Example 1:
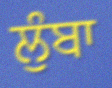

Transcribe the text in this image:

ਲੁੰਬਾ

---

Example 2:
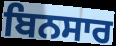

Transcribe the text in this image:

ਬਿਨਸਾਰ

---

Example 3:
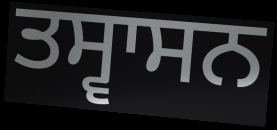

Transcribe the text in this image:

ਤਸ੍ਵਾਸਨ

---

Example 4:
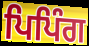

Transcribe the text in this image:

ਪਿਪਿੰਗ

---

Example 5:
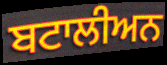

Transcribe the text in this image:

ਬਟਾਲੀਅਨ